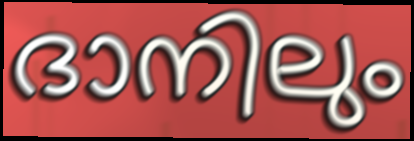
ദാനിലും